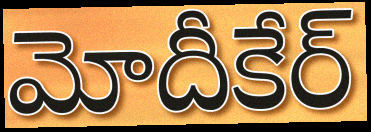
మోదీకేర్